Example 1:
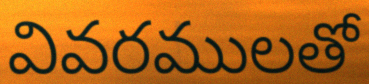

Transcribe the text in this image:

వివరములతో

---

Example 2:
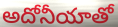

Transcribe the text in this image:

అదోనీయాతో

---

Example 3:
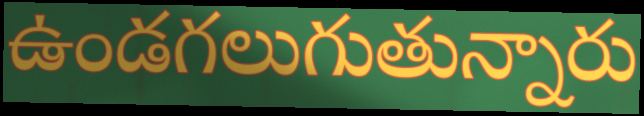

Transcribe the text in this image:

ఉండగలుగుతున్నారు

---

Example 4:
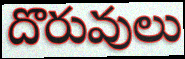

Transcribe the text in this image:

దొరువులు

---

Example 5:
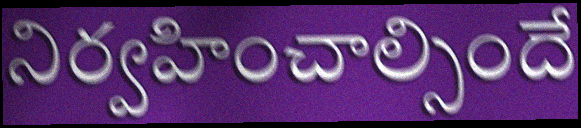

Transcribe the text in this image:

నిర్వహించాల్సిందే